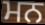
ਮਨ